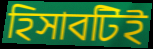
হিসাবটিই